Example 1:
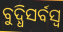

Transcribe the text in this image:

ବୁଦ୍ଧିସର୍ବସ୍ୱ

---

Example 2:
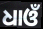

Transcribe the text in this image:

ଧାଓଁ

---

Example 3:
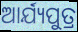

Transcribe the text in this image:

ଆର୍ଯ୍ୟପୁତ୍ର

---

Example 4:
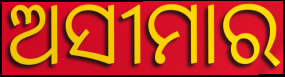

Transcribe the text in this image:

ଅସୀମାର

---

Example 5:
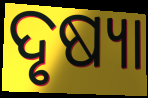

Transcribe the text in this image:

ଦୃଷ୍ୟା